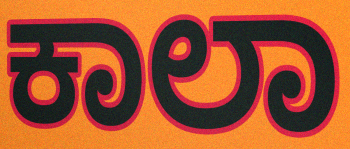
ಕಾಲಾ